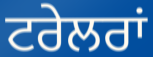
ਟਰੇਲਰਾਂ